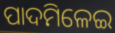
ପାଦମିଳେଇ